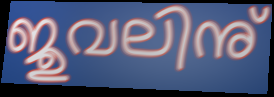
ജുവലിനു്